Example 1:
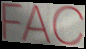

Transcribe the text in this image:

FAC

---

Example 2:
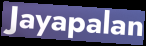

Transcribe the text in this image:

Jayapalan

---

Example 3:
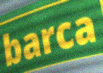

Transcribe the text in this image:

barca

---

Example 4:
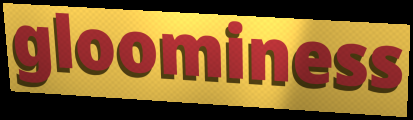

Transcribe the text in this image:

gloominess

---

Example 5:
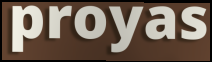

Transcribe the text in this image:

proyas